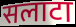
सलाटा